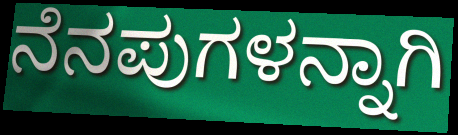
ನೆನಪುಗಳನ್ನಾಗಿ